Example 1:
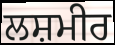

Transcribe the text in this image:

ਲਸ਼ਮੀਰ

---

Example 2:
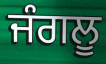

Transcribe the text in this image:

ਜੰਗਲੂ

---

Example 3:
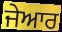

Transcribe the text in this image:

ਜੇਆਰ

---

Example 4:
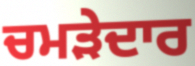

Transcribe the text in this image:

ਚਮੜੇਦਾਰ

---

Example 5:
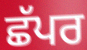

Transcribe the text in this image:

ਛੱਪਰ